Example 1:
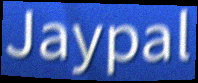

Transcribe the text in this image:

Jaypal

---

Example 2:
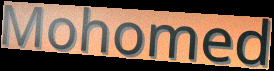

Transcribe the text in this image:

Mohomed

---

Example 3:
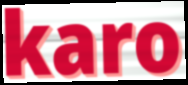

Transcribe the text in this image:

karo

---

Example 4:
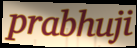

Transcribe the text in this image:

prabhuji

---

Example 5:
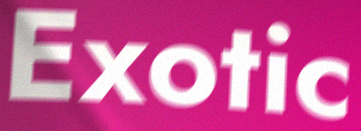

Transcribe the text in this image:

Exotic